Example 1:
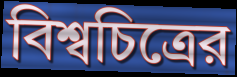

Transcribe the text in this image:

বিশ্বচিত্রের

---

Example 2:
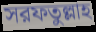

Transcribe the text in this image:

সরফতুল্লাহ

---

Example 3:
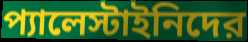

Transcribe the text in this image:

প্যালেস্টাইনিদের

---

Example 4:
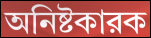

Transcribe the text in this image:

অনিষ্টকারক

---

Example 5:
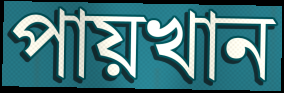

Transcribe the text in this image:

পায়খান